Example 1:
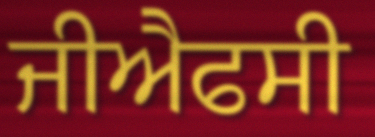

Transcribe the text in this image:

ਜੀਐਫਸੀ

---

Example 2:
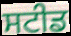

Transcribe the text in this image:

ਸਟੀਡ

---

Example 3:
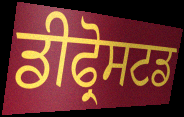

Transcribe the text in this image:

ਡੀਫ੍ਰੋਸਟਡ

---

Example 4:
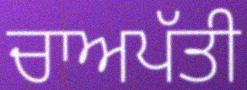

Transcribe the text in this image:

ਚਾਅਪੱਤੀ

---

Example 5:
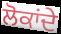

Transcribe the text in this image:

ਲੋਕਾਂਦੇ